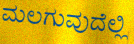
ಮಲಗುವುದೆಲ್ಲಿ